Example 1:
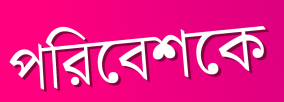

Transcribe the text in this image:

পরিবেশকে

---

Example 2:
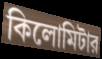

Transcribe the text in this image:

কিলোমিটার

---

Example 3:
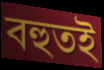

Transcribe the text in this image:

বহুতই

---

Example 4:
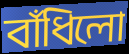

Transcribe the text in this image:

বাঁধিলো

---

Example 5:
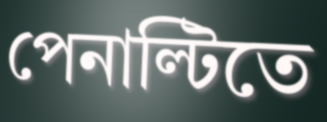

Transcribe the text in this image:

পেনাল্টিতে